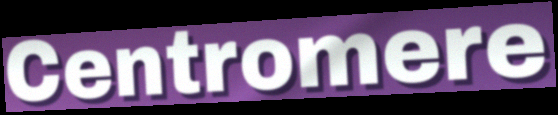
Centromere